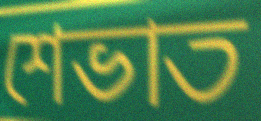
শেভাত